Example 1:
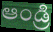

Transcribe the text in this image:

ఆండ్రి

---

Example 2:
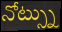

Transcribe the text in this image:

నోట్స్ను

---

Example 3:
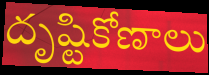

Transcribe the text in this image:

దృష్టికోణాలు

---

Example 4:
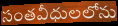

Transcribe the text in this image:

సంతవీధులలోను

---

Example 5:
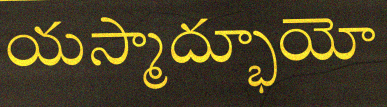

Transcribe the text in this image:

యస్మాద్భూయో